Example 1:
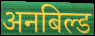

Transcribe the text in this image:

अनबिल्ड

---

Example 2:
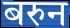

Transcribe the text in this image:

बरुन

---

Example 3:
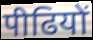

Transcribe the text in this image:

पीढियों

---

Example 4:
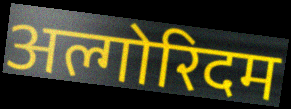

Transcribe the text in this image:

अल्गोरिदम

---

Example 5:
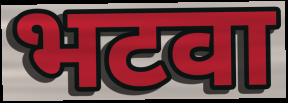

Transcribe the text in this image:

भटवा